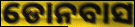
ଡୋନବାସ